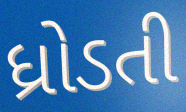
ધ્રોડતી